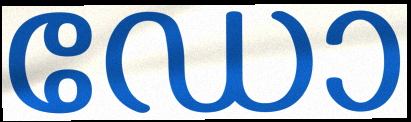
ഡോ